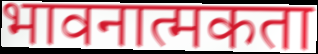
भावनात्मकता